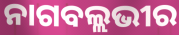
ନାଗବଲ୍ଲଭୀର